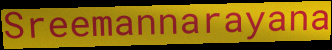
Sreemannarayana